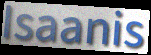
Isaanis